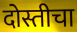
दोस्तीचा